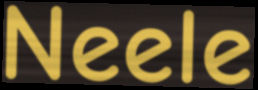
Neele